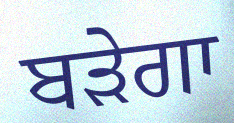
ਬੜੇਗਾ